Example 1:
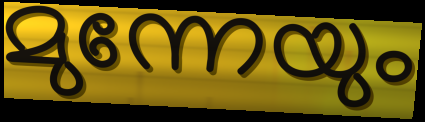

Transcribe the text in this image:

മുന്നേയും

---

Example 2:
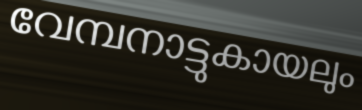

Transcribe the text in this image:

വേമ്പനാട്ടുകായലും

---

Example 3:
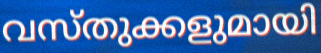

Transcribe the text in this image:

വസ്തുക്കളുമായി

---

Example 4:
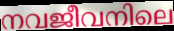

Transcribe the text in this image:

നവജീവനിലെ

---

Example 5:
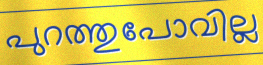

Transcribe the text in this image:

പുറത്തുപോവില്ല